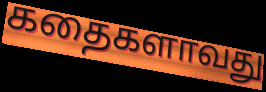
கதைகளாவது